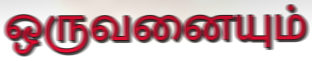
ஒருவனையும்